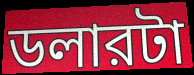
ডলারটা